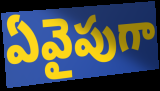
ఏవైపుగా